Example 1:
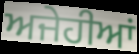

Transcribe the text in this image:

ਅਜੇਹੀਆਂ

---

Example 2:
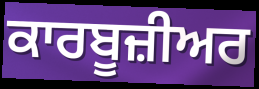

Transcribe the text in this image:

ਕਾਰਬੂਜ਼ੀਅਰ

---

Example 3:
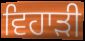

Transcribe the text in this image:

ਵਿਹਾੜੀ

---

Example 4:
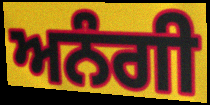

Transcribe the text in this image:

ਅਨੰਗੀ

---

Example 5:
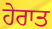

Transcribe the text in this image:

ਹੇਰਾਤ